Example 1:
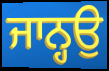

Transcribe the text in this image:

ਜਾਨ੍ਹਉ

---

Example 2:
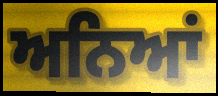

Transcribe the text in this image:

ਅਨਿਆਂ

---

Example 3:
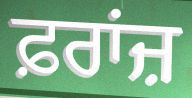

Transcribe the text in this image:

ਫ਼ਰਾਂਜ਼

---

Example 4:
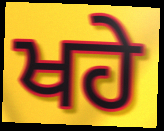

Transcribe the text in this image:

ਖਹੇ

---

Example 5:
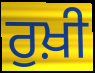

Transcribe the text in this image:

ਰੁਖ਼ੀ